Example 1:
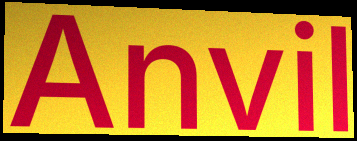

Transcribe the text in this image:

Anvil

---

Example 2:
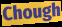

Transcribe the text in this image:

Chough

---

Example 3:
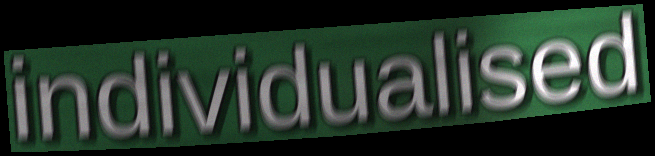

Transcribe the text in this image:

individualised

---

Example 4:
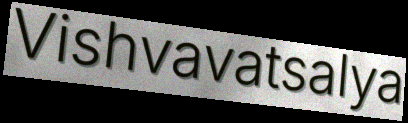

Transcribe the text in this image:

Vishvavatsalya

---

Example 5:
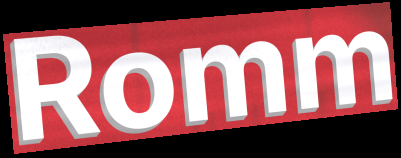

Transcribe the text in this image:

Romm